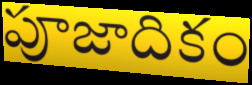
పూజాదికం